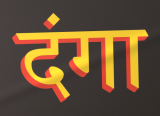
दंगा